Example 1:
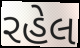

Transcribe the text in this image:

રહેલ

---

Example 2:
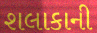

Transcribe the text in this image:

શલાકાની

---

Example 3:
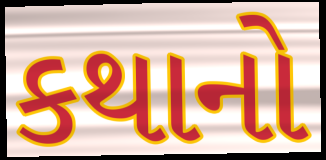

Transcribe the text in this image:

કથાનો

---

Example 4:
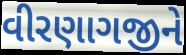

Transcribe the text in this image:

વીરણાગજીને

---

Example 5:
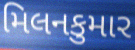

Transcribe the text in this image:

મિલનકુમાર